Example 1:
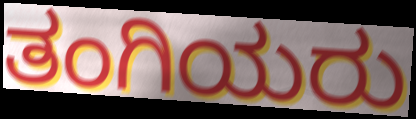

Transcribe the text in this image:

ತಂಗಿಯರು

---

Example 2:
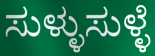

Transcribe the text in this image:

ಸುಳ್ಳುಸುಳ್ಳೆ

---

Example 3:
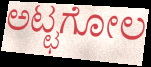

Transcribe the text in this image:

ಅಟ್ಟಗೋಲ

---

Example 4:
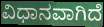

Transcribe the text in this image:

ವಿಧಾನವಾಗಿದೆ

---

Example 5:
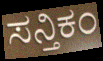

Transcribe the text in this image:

ಸನ್ತಿಕಂ